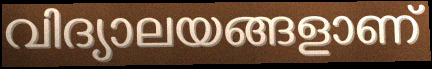
വിദ്യാലയങ്ങളാണ്